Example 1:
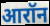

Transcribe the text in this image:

आरॉन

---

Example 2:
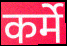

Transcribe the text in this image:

कर्मे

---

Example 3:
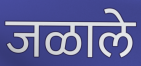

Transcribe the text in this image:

जळाले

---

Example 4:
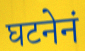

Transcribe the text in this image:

घटनेनं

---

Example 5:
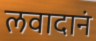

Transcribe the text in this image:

लवादानं